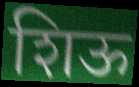
शिऊ